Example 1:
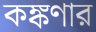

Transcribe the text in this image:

কঙ্কণার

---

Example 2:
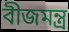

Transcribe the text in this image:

বীজমন্ত্র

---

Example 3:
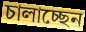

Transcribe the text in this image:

চালাচ্ছেন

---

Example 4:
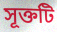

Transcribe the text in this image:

সূক্তটি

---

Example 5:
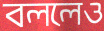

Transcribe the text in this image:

বললেও